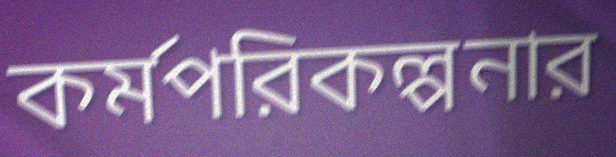
কর্মপরিকল্পনার